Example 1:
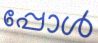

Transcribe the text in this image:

പ്പോൾ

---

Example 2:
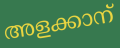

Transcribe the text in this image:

അളക്കാന്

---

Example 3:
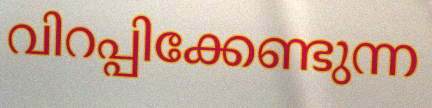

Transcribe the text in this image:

വിറപ്പിക്കേണ്ടുന്ന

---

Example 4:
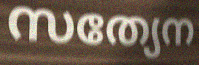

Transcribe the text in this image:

സത്യേന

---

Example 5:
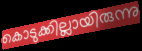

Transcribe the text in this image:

കൊടുക്കില്ലായിരുന്നു